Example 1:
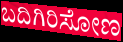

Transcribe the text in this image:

ಬದಿಗಿರಿಸೋಣ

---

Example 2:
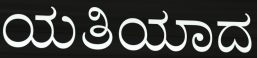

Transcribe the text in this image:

ಯತಿಯಾದ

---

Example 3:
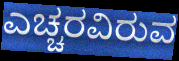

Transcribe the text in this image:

ಎಚ್ಚರವಿರುವ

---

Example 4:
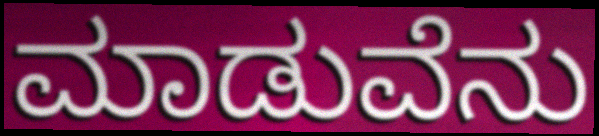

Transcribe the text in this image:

ಮಾಡುವೆನು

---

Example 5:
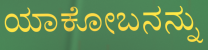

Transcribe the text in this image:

ಯಾಕೋಬನನ್ನು